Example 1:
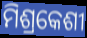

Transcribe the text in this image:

ମିଶ୍ରକେଶୀ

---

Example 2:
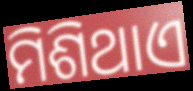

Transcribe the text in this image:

ମିଶିଥାଏ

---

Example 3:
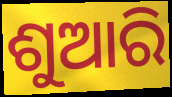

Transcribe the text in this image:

ଶୁଆରି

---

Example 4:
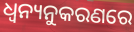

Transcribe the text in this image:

ଧ୍ଵନ୍ୟନୁକରଣରେ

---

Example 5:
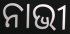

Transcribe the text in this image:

ନାଭୀ